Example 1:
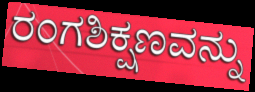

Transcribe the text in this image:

ರಂಗಶಿಕ್ಷಣವನ್ನು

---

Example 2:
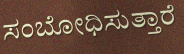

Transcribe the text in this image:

ಸಂಬೋಧಿಸುತ್ತಾರೆ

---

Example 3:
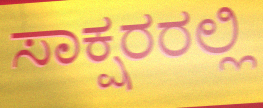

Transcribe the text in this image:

ಸಾಕ್ಷರರಲ್ಲಿ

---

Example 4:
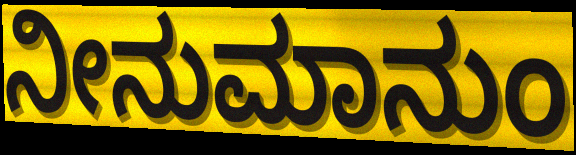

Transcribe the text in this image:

ನೀನುಮಾನುಂ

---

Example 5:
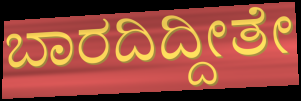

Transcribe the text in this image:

ಬಾರದಿದ್ದೀತೇ